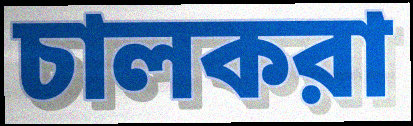
চালকরা